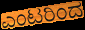
ಎಂಟರಿಂದ